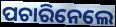
ପଚାରିନେଲେ